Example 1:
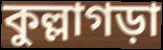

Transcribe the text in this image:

কুল্লাগড়া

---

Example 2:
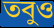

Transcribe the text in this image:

তবুও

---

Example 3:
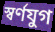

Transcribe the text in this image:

স্বর্ণযুগ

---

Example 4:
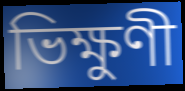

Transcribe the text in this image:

ভিক্ষুণী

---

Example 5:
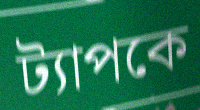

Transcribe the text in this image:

ট্যাপকে